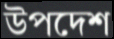
উপদেশ